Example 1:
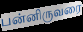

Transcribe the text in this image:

பன்னிருவரை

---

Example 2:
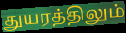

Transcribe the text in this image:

துயரத்திலும்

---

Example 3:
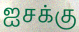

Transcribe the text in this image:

ஐசக்கு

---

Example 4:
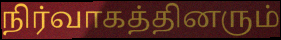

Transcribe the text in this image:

நிர்வாகத்தினரும்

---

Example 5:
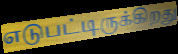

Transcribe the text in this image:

எடுபட்டிருக்கிறது